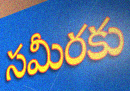
సమీరకు